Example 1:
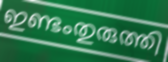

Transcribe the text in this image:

ഇണ്ടംതുരുത്തി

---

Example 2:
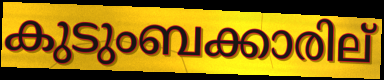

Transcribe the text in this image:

കുടുംബക്കാരില്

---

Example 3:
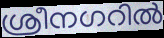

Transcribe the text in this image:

ശ്രീനഗറിൽ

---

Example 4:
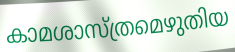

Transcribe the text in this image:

കാമശാസ്ത്രമെഴുതിയ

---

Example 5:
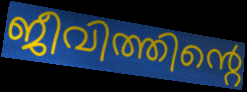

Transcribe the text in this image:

ജീവിത്തിന്റെ